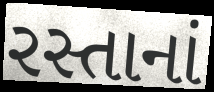
રસ્તાનાં